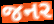
જનર